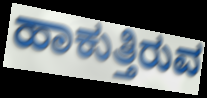
ಹಾಕುತ್ತಿರುವ